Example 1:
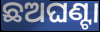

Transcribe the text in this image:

ଛଅଘଣ୍ଟା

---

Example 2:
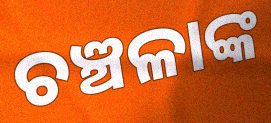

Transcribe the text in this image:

ଚଞ୍ଚଳାଙ୍କ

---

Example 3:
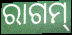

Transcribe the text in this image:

ରାଗମ୍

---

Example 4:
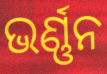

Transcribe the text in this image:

ଭର୍ଣ୍ଣନ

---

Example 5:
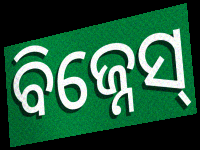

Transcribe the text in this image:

ବିଜ୍ନେସ୍